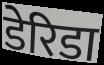
डेरिडा